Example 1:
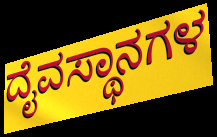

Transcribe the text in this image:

ದೈವಸ್ಥಾನಗಳ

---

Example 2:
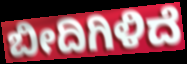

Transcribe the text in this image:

ಬೀದಿಗಿಳಿದೆ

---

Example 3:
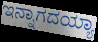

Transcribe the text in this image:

ಇನ್ನಾಗದಯ್ಯಾ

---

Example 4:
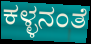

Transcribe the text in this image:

ಕಳ್ಳನಂತೆ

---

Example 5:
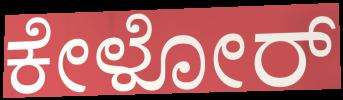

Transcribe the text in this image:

ಕೇಳೋರ್